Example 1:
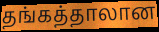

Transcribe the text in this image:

தங்கத்தாலான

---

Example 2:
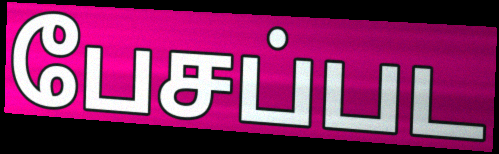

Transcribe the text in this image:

பேசப்பட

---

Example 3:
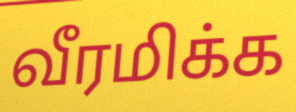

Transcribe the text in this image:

வீரமிக்க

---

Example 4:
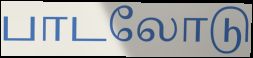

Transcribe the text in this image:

பாடலோடு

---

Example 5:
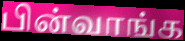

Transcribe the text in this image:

பின்வாங்க